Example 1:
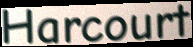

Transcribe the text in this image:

Harcourt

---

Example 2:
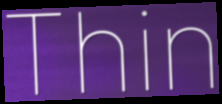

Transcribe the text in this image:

Thin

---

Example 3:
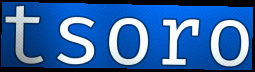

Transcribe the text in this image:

tsoro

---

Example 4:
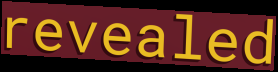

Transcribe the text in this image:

revealed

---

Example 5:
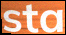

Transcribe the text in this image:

sta